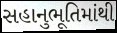
સહાનુભૂતિમાંથી